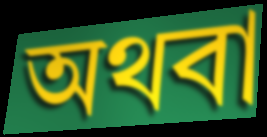
অথবা